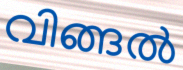
വിങ്ങൽ